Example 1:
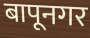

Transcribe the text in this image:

बापूनगर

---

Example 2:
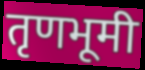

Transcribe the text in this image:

तृणभूमी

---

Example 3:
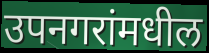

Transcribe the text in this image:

उपनगरांमधील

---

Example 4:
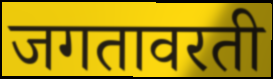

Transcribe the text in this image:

जगतावरती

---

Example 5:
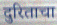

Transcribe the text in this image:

दुरिताचा